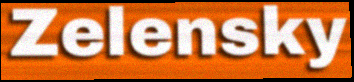
Zelensky